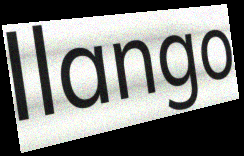
Ilango